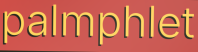
palmphlet